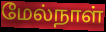
மேல்நாள்